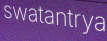
swatantrya